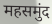
महसमुंद